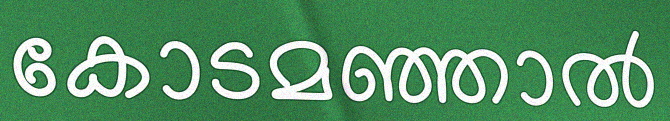
കോടമഞ്ഞാൽ